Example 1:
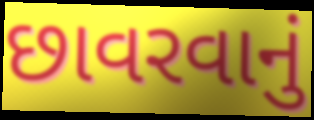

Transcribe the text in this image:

છાવરવાનું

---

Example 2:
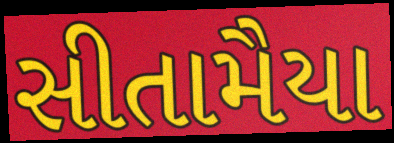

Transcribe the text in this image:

સીતામૈયા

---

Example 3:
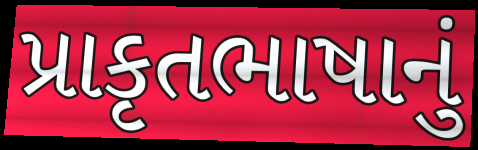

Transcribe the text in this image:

પ્રાકૃતભાષાનું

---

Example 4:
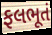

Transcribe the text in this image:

ફલભૂતં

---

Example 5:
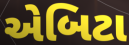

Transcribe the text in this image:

એબિટા